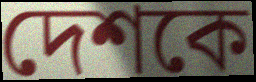
দেশকে